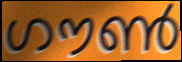
ഗൗൺ